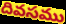
దివసము